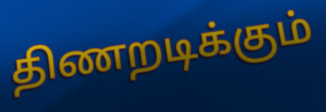
திணறடிக்கும்